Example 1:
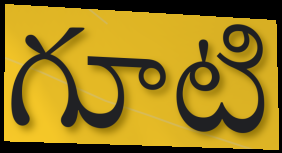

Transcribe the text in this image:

గూటి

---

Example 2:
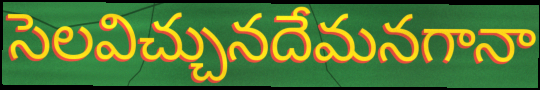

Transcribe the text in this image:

సెలవిచ్చునదేమనగానా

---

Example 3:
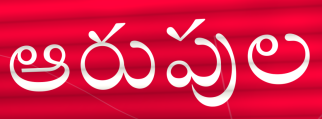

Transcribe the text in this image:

ఆరుపుల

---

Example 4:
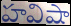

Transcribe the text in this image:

హవిషా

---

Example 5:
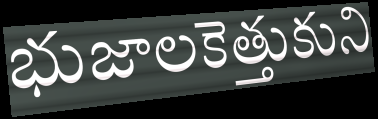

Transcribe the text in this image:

భుజాలకెత్తుకుని